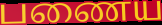
பணைய